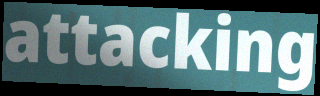
attacking